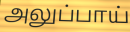
அலுப்பாய்